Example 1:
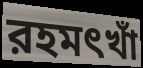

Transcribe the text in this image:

রহমৎখাঁ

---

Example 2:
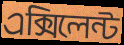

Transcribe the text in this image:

এক্সিলেন্ট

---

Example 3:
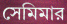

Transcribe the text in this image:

সেমিমার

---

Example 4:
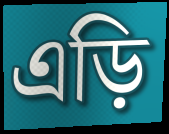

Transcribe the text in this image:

এড়ি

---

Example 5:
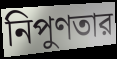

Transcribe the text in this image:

নিপুণতার